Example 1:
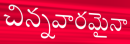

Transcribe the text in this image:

చిన్నవారమైనా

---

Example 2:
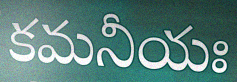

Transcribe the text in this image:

కమనీయః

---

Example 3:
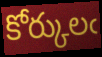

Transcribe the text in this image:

కోర్కులఁ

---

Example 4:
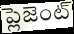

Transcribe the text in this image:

ప్లెజెంట్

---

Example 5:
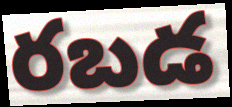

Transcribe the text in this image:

రబడ